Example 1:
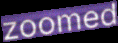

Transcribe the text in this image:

zoomed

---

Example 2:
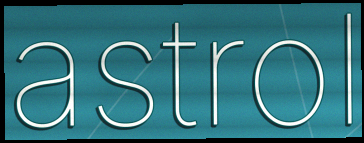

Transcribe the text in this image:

astrol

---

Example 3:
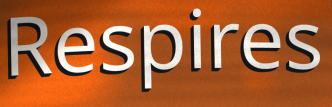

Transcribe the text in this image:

Respires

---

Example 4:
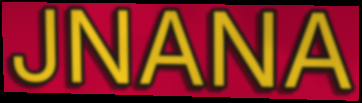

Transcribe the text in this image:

JNANA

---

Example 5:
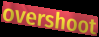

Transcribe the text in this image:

overshoot